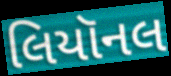
લિયૉનલ